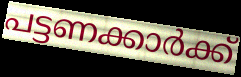
പട്ടണക്കാർക്ക്